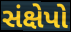
સંક્ષેપો